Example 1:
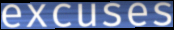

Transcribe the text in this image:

excuses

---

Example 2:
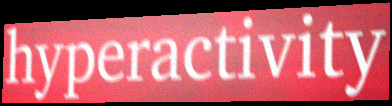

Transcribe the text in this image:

hyperactivity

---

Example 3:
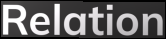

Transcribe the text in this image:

Relation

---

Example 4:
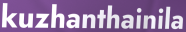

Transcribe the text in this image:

kuzhanthainila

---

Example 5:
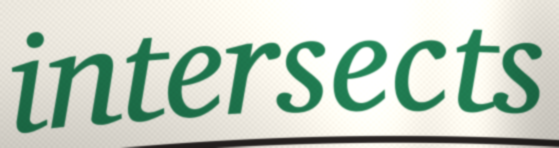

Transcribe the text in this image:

intersects